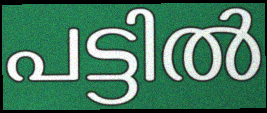
പട്ടിൽ